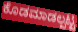
ಕೊಡಮಾಡಲ್ಪಟ್ಟ